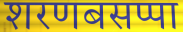
शरणबसप्पा